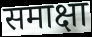
समाक्षा